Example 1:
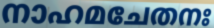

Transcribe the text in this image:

നാഹമചേതനഃ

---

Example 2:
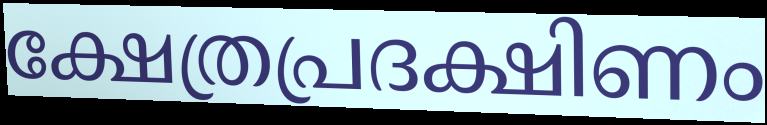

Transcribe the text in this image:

ക്ഷേത്രപ്രദക്ഷിണം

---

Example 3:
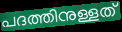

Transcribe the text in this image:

പദത്തിനുള്ളത്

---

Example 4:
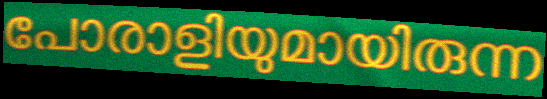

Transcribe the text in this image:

പോരാളിയുമായിരുന്ന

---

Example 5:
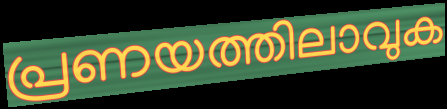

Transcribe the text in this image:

പ്രണയത്തിലാവുക